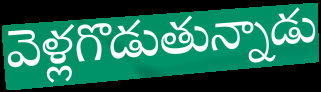
వెళ్లగొడుతున్నాడు